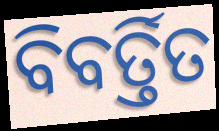
ବିବର୍ତ୍ତିତ